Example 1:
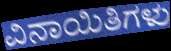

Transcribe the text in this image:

ವಿನಾಯಿತಿಗಳು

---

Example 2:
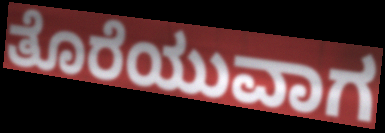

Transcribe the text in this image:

ತೊರೆಯುವಾಗ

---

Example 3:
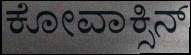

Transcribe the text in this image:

ಕೋವಾಕ್ಸಿನ್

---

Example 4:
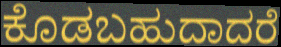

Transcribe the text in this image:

ಕೊಡಬಹುದಾದರೆ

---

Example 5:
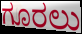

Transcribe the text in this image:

ಗೂರಲು